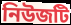
নিউজটি